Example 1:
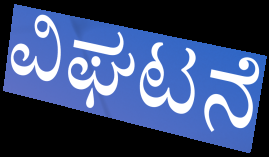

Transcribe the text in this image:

ವಿಘಟನೆ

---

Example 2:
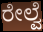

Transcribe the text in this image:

ರೇಲ್ವೆ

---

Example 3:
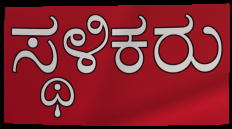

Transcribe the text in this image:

ಸ್ಥಳಿಕರು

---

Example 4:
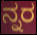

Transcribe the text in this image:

ನ್ನರ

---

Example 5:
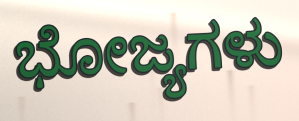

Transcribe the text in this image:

ಭೋಜ್ಯಗಳು